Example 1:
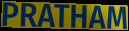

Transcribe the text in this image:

PRATHAM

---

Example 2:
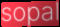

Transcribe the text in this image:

sopal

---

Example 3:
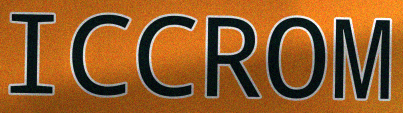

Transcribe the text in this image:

ICCROM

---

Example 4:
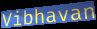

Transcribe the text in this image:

Vibhavan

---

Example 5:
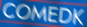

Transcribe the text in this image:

COMEDK